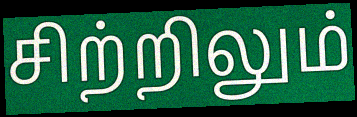
சிற்றிலும்